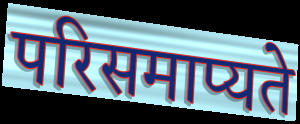
परिसमाप्यते